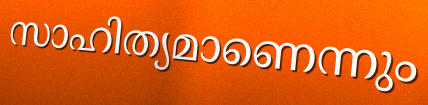
സാഹിത്യമാണെന്നും